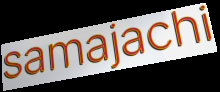
samajachi